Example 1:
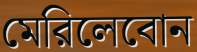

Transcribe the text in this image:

মেরিলেবোন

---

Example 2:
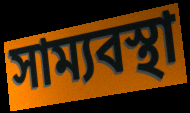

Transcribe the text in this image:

সাম্যবস্থা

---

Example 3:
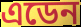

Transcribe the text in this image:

এডেন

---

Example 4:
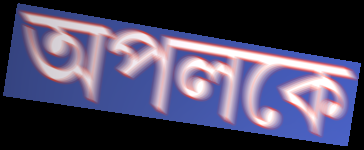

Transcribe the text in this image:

অপলকে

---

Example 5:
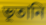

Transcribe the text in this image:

ভূতানি